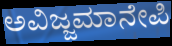
ಅವಿಜ್ಜಮಾನೇಪಿ